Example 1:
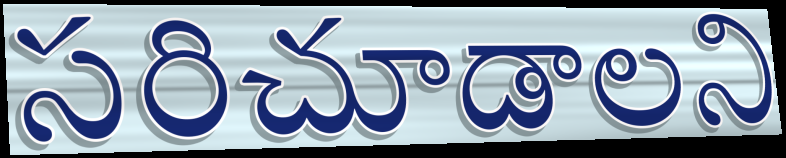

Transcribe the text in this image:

సరిచూడాలని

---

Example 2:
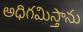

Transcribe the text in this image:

అధిగమిస్తాను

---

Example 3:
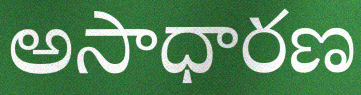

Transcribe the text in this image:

అసాధారణ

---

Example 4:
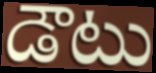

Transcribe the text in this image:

డౌటు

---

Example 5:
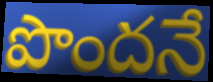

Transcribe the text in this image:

పొందనే